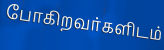
போகிறவர்களிடம்